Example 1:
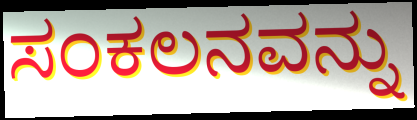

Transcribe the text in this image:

ಸಂಕಲನವನ್ನು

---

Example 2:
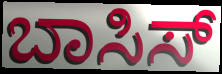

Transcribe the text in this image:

ಬಾಸಿಸ್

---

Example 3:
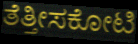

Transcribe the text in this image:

ತೆತ್ತೀಸಕೋಟಿ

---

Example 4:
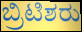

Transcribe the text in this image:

ಬ್ರಿಟಿಶರು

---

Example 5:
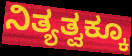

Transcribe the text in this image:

ನಿತ್ಯತ್ವಕ್ಕೂ